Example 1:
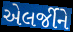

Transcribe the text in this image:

એલર્જીને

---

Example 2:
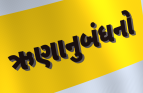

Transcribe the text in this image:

ઋણાનુબંધનો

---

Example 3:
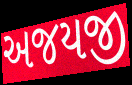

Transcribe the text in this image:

અજયજી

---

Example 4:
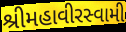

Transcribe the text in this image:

શ્રીમહાવીરસ્વામી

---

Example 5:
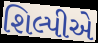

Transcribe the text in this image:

શિલ્પીએ